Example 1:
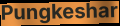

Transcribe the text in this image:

Pungkeshar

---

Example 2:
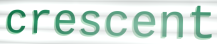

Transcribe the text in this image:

crescent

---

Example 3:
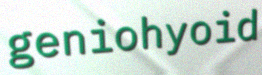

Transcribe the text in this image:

geniohyoid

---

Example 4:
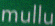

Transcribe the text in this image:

mullu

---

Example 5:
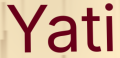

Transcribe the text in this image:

Yati